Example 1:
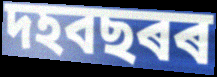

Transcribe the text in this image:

দহবছৰৰ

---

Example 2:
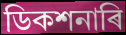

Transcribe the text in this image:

ডিকশনাৰি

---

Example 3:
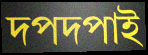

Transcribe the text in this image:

দপদপাই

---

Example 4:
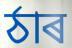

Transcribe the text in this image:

ঠাৰ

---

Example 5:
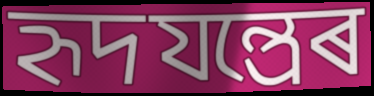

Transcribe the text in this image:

হৃদযন্ত্ৰেৰ